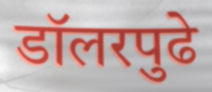
डॉलरपुढे